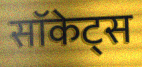
सॉकेट्स